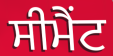
ਸੀਮੈਂਟ